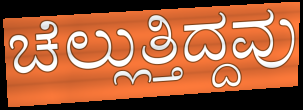
ಚೆಲ್ಲುತ್ತಿದ್ದವು